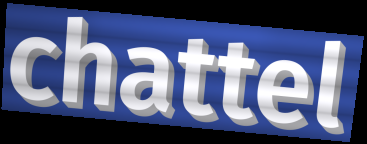
chattel